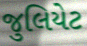
જુલિયેટ